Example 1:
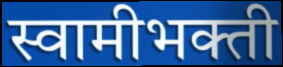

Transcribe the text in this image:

स्वामीभक्ती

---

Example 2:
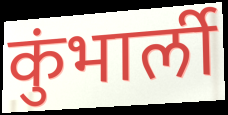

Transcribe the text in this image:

कुंभार्ली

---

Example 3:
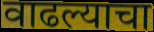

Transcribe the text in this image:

वाढल्याचा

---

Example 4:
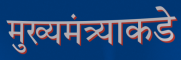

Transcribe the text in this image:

मुख्यमंत्र्याकडे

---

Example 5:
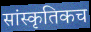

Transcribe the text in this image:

सांस्कृतिकच